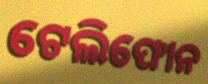
ଟେଲିଫୋନ